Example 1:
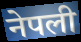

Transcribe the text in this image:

नेपली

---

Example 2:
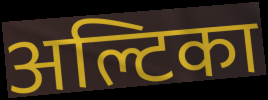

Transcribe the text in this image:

अल्टिका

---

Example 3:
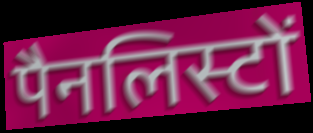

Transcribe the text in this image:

पैनलिस्टों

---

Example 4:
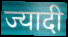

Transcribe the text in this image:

ज्यादी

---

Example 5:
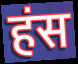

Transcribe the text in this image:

हंस